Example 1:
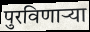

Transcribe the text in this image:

पुरविणाऱ्या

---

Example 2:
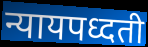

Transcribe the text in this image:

न्यायपध्दती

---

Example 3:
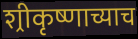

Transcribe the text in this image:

श्रीकृष्णाच्याच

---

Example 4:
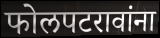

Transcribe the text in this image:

फोलपटरावांना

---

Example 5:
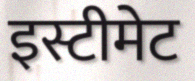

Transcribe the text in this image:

इस्टीमेट